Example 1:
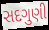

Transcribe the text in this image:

સદગુણી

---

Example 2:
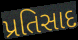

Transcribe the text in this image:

પ્રતિસાદ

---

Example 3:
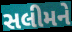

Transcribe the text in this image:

સલીમને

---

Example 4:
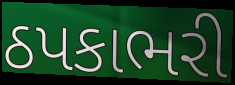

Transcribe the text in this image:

ઠપકાભરી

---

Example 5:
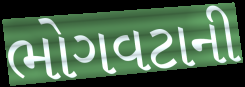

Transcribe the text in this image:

ભોગવટાની